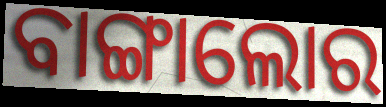
ବାଙ୍ଗାଲୋର